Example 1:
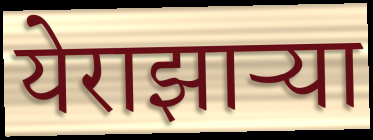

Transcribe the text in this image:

येराझाऱ्या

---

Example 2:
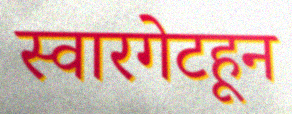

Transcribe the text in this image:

स्वारगेटहून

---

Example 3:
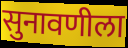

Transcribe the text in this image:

सुनावणीला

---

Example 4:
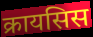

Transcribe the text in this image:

क्रायसिस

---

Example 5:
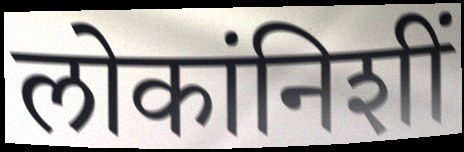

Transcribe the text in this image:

लोकांनिशीं